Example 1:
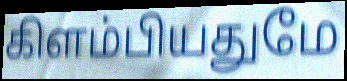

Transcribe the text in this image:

கிளம்பியதுமே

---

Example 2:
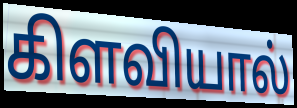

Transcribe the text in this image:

கிளவியால்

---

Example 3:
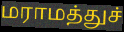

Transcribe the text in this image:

மராமத்துச்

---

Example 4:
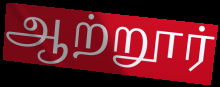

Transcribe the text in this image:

ஆற்றூர்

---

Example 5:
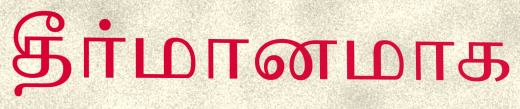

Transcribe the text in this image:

தீர்மானமாக